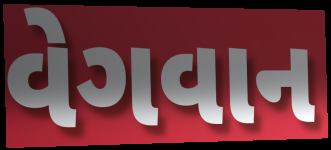
વેગવાન